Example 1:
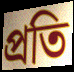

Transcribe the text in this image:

প্ৰতি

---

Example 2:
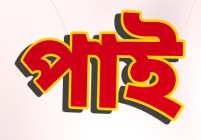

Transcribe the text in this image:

পাই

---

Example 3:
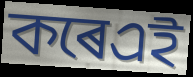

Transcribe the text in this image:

কৰেএই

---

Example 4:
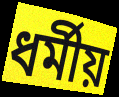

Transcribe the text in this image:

ধৰ্মীয়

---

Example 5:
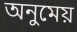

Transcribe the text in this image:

অনুমেয়